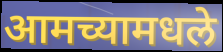
आमच्यामधले